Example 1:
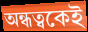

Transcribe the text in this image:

অন্ধত্বকেই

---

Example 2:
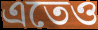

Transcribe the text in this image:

এতেও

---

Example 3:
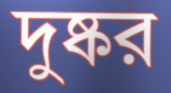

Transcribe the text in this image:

দুষ্কর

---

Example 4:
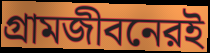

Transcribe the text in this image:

গ্রামজীবনেরই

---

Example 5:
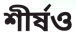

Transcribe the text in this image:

শীর্ষও